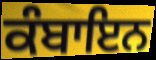
ਕੰਬਾਇਨ